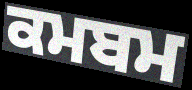
ਕਮਬਮ